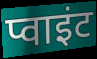
प्वाइंट